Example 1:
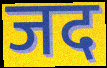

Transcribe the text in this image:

जद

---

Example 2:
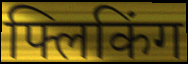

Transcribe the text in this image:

फ्लिकिंग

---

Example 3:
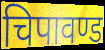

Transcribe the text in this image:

चिपावण्ड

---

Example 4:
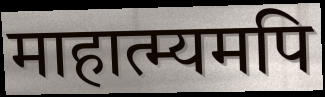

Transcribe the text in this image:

माहात्म्यमपि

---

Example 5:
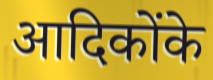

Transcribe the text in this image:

आदिकोंके